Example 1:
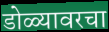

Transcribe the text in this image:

डोळ्यावरचा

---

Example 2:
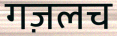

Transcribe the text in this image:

गज़लच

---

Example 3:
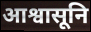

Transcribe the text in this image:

आश्वासूनि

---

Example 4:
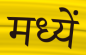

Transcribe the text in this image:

मध्यें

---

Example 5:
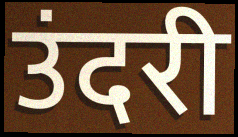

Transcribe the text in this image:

उंदरी